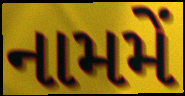
નામમેં